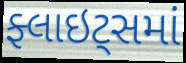
ફ્લાઇટ્સમાં